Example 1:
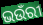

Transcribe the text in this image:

ଭଉଁରୀ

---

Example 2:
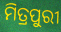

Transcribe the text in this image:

ମିତ୍ରପୁରୀ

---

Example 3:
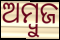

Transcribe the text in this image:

ଅମ୍ୱୁଜ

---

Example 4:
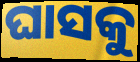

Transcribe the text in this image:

ଘାସକୁ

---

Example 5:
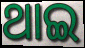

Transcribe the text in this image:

ଥାଇ